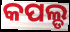
କପଲ୍ଡ